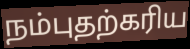
நம்புதற்கரிய